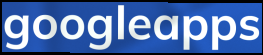
googleapps